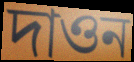
দাওন